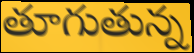
తూగుతున్న